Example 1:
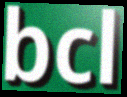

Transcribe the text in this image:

bcl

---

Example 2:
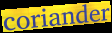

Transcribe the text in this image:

coriander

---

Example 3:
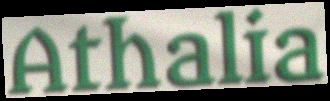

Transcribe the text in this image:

Athalia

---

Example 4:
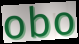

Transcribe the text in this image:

obo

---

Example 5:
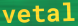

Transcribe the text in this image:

vetal